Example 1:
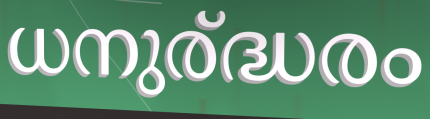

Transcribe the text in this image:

ധനുര്ദ്ധരം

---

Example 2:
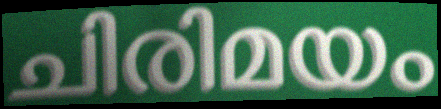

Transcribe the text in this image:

ചിരിമയം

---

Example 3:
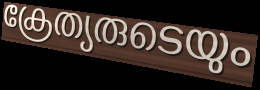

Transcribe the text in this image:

ക്രേത്യരുടെയും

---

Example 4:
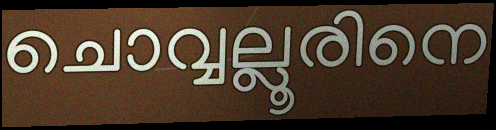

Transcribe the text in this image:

ചൊവ്വല്ലൂരിനെ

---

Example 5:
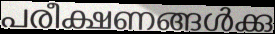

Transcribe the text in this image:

പരീക്ഷണങ്ങൾക്കു